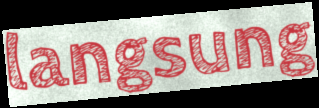
langsung